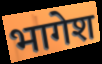
भागेश